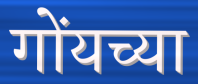
गोंयच्या